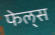
फेल्स